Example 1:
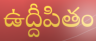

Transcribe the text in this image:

ఉద్దీపితం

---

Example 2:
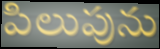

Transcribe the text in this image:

పిలుపును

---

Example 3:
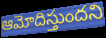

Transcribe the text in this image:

ఆమోదిస్తుందని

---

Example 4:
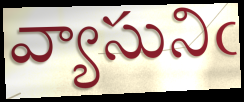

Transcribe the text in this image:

వ్యాసునిఁ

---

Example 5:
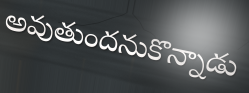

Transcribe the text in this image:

అవుతుందనుకొన్నాడు